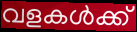
വളകൾക്ക്